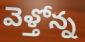
వెళ్తోన్న